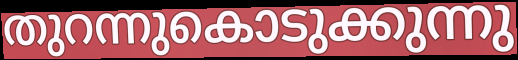
തുറന്നുകൊടുക്കുന്നു